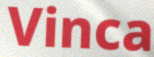
Vinca